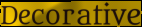
Decorative